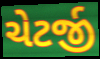
ચેટર્જી